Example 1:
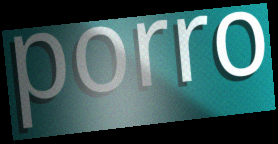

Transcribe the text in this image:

porro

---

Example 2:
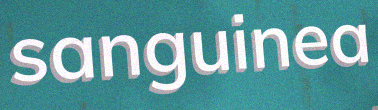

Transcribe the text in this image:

sanguinea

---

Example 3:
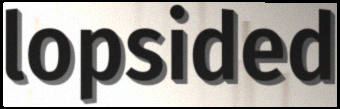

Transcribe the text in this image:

lopsided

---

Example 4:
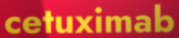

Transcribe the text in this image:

cetuximab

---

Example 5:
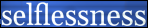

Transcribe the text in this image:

selflessness